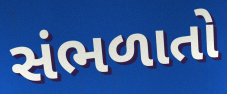
સંભળાતો